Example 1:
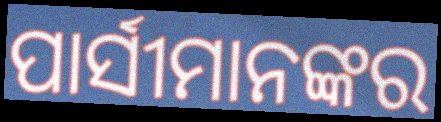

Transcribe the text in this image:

ପାର୍ସୀମାନଙ୍କର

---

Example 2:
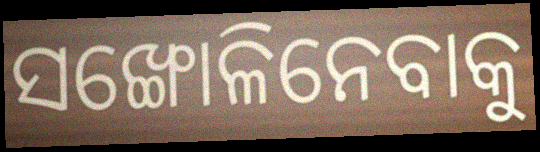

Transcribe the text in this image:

ସଙ୍ଖୋଳିନେବାକୁ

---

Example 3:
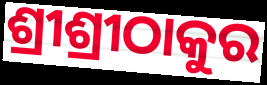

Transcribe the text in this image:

ଶ୍ରୀଶ୍ରୀଠାକୁର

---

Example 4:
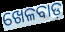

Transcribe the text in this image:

ଖେଳବାଡ଼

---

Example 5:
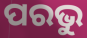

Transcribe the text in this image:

ପରଭୁ